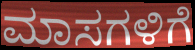
ಮಾಸಗಳಿಗೆ